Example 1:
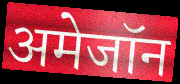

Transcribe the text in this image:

अमेजॉन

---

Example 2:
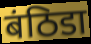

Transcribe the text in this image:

बंठिडा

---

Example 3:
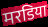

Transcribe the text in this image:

मरडिया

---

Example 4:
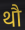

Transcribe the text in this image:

थौ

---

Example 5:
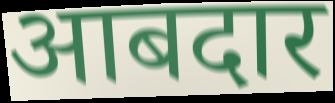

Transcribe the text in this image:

आबदार